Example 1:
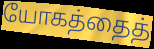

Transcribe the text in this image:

யோகத்தைத்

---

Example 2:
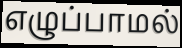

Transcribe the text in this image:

எழுப்பாமல்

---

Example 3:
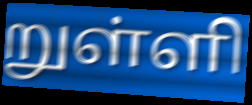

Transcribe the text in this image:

றுள்ளி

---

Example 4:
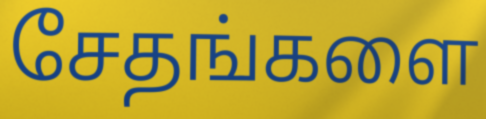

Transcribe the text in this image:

சேதங்களை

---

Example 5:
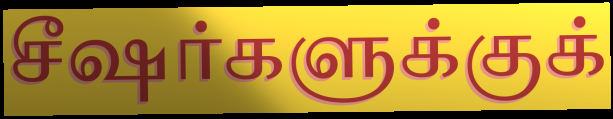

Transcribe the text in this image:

சீஷர்களுக்குக்